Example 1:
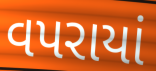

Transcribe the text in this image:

વપરાયાં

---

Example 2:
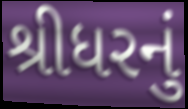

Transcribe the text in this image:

શ્રીધરનું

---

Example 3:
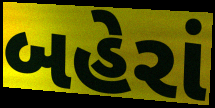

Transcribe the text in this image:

બહેરાં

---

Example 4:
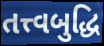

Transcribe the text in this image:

તત્ત્વબુદ્ધિ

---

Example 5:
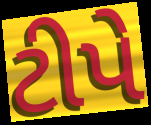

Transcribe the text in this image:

ટીપે